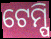
ଟେମ୍ପି